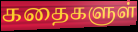
கதைகளுள்